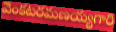
వెంకటరమణయ్యగారి